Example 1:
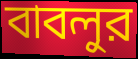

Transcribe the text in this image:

বাবলুর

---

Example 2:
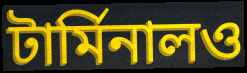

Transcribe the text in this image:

টার্মিনালও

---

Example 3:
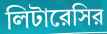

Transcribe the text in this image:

লিটারেসির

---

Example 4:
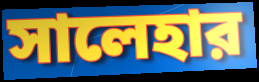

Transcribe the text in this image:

সালেহার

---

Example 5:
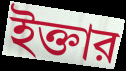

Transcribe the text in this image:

ইক্তার